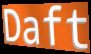
Daft